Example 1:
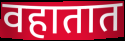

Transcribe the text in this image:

वहातात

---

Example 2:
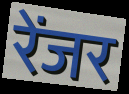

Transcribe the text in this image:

रेंजर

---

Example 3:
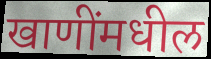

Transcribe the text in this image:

खाणींमधील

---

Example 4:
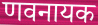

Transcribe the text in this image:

णवनायक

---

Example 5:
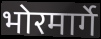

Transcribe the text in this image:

भोरमार्गे